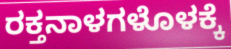
ರಕ್ತನಾಳಗಳೊಳಕ್ಕೆ